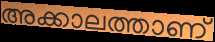
അക്കാലത്താണ്